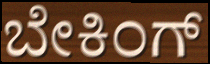
ಬೇಕಿಂಗ್